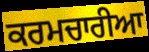
ਕਰਮਚਾਰੀਆ